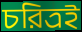
চরিত্রই